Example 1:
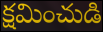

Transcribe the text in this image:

క్షమించుడి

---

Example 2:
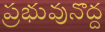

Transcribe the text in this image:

ప్రభువునొద్ద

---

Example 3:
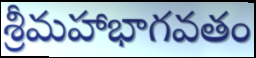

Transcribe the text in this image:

శ్రీమహాభాగవతం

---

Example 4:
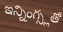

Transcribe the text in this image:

ఇన్నింగ్స్లతో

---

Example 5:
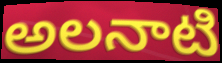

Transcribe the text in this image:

అలనాటి